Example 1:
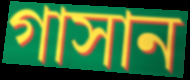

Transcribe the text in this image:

গাসান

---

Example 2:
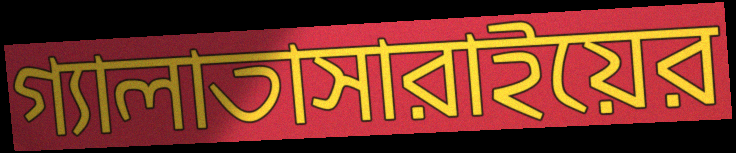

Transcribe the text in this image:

গ্যালাতাসারাইয়ের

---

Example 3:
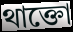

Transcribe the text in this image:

থাক্তো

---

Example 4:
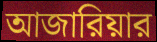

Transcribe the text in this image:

আজারিয়ার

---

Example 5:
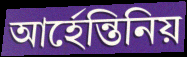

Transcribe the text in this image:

আর্হেন্তিনিয়